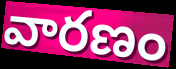
వారణం